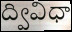
ద్వివిధా